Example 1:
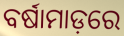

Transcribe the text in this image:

ବର୍ଷାମାଡ଼ରେ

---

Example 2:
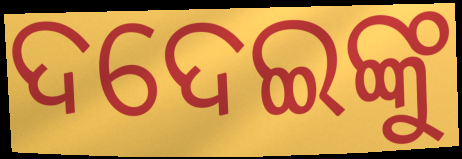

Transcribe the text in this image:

ଦଦେଇଙ୍କୁ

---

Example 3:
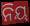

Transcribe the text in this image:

ନିୟ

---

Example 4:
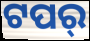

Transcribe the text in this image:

ଟପର୍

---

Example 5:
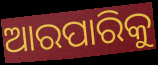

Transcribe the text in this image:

ଆରପାରିକୁ